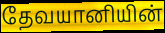
தேவயானியின்